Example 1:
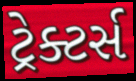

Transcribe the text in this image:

ટ્રેક્ટર્સ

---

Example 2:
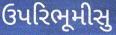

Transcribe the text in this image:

ઉપરિભૂમીસુ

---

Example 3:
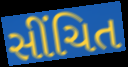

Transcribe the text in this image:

સીંચિત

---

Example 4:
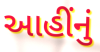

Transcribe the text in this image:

આહીંનું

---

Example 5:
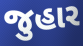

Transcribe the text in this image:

જુહાર